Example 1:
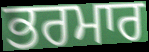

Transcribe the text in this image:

ਭਰਮਾਰ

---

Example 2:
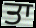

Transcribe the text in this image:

ਤਾ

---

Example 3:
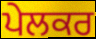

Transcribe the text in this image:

ਪੇਲਕਰ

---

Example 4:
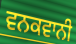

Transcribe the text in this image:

ਵਨਕਵਾਨੀ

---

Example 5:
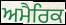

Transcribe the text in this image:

ਅਮੈਰਿਕ